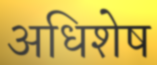
अधिशेष